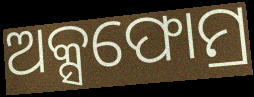
ଅକ୍ସଫୋମ୍ର